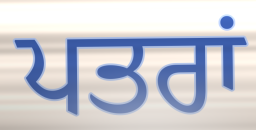
ਪਤਰਾਂ